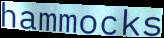
hammocks